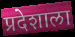
प्रदेशाला